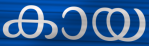
കായ